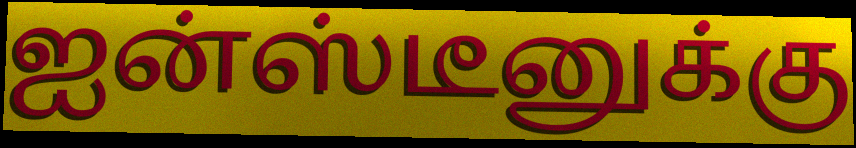
ஐன்ஸ்டீனுக்கு